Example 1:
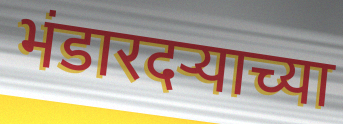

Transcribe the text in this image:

भंडारदर्‍याच्या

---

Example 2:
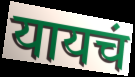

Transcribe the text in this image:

यायचं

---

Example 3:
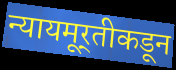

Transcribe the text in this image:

न्यायमूर्तीकडून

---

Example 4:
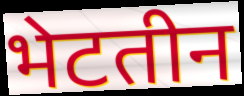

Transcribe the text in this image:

भेटतीन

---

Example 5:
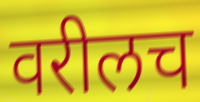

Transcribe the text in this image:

वरीलच